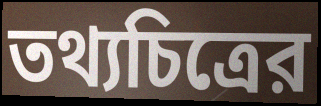
তথ্যচিত্রের